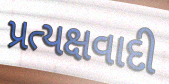
પ્રત્યક્ષવાદી